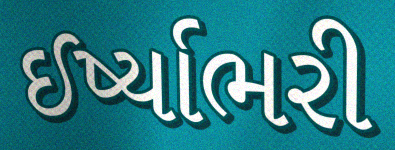
ઈર્ષ્યાભરી